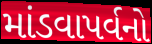
માંડવાપર્વનો